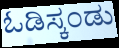
ಓಡಿಸ್ಕಂಡು